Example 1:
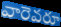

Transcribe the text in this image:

వారెవరూ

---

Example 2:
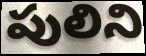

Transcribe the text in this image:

పులిని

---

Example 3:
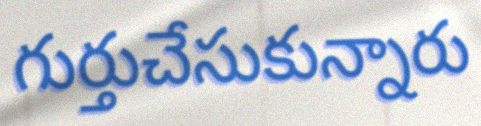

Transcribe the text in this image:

గుర్తుచేసుకున్నారు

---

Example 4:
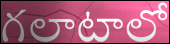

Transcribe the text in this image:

గలాటాలో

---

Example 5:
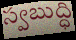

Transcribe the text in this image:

స్వబుద్ధి